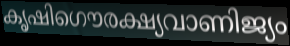
കൃഷിഗൌരക്ഷ്യവാണിജ്യം